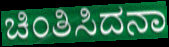
ಚಿಂತಿಸಿದನಾ